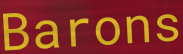
Barons